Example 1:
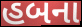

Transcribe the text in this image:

હબના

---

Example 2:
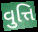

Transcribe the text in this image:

વુત્તિ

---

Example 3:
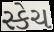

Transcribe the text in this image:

સ્કેચ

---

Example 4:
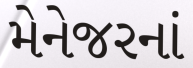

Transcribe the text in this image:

મેનેજરનાં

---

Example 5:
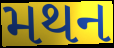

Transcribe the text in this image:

મથન